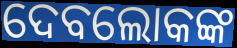
ଦେବଲୋକଙ୍କ